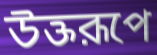
উক্তরূপে